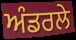
ਅੰਡਰਲੇ